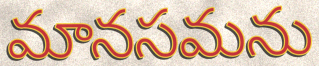
మానసమను